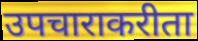
उपचाराकरीता